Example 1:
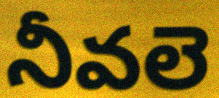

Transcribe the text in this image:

నీవలె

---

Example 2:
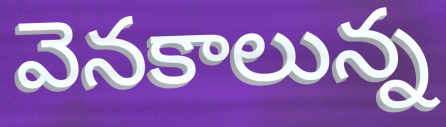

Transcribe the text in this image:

వెనకాలున్న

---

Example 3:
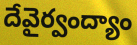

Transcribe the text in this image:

దేవైర్వంద్యాం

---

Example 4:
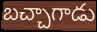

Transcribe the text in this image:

బచ్చాగాడు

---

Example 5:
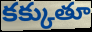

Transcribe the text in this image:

కక్కుతూ